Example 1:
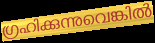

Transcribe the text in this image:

ഗ്രഹിക്കുന്നുവെങ്കിൽ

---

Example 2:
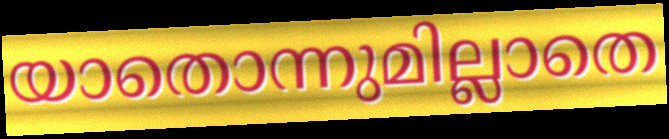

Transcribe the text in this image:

യാതൊന്നുമില്ലാതെ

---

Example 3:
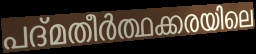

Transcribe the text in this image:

പദ്മതീർത്ഥക്കരയിലെ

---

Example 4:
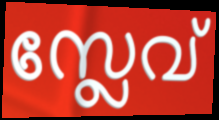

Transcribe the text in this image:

സ്ലേവ്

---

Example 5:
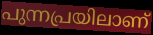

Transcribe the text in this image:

പുന്നപ്രയിലാണ്